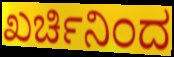
ಖರ್ಚಿನಿಂದ